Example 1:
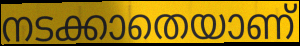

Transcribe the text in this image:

നടക്കാതെയാണ്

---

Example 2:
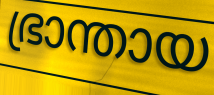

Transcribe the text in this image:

ഭ്രാന്തായ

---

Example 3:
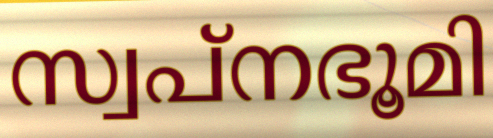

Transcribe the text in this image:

സ്വപ്നഭൂമി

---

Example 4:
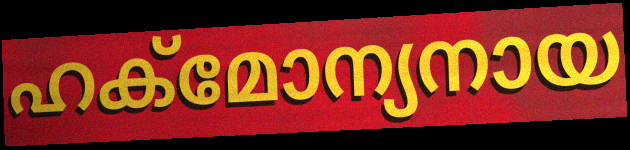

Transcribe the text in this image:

ഹക്മോന്യനായ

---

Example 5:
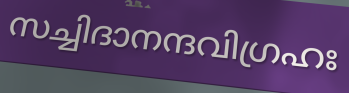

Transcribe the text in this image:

സച്ചിദാനന്ദവിഗ്രഹഃ